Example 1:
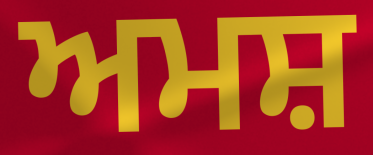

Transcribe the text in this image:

ਅਮਸ਼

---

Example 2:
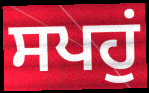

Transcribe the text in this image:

ਸਪਹੁਂ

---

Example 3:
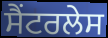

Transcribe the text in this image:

ਸੈਂਟਰਲੇਸ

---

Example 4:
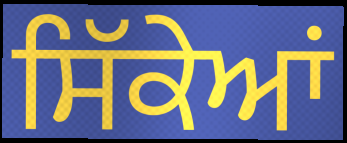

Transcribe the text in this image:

ਸਿੱਕੇਆਂ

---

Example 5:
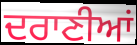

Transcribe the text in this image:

ਦਰਾਣੀਆਂ